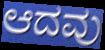
ಆದವು